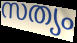
സത്യം